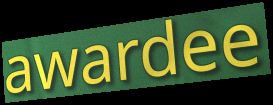
awardee